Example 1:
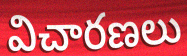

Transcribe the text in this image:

విచారణలు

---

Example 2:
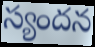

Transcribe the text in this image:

స్యందన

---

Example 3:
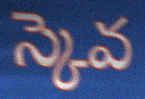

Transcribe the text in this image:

స్కెవ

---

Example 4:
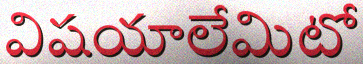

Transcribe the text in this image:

విషయాలేమిటో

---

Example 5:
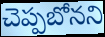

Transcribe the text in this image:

చెప్పబోనని